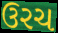
ઉરચ